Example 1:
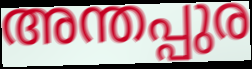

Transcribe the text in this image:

അന്തപ്പുര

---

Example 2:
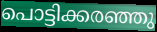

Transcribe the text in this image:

പൊട്ടിക്കരഞ്ഞു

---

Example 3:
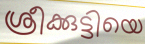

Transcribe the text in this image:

ശ്രീക്കുട്ടിയെ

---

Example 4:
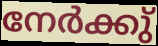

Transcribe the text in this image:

നേർക്കു്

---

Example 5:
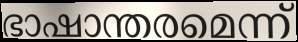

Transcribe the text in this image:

ഭാഷാന്തരമെന്ന്